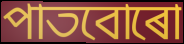
পাতবোৰো